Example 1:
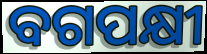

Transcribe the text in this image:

ବଗପକ୍ଷୀ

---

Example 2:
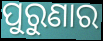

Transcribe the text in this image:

ପୁରୁଣାର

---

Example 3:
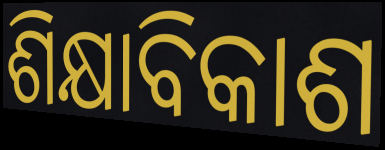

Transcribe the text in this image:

ଶିକ୍ଷାବିକାଶ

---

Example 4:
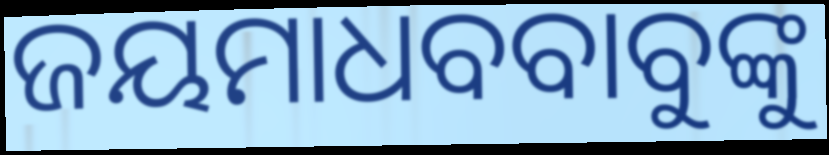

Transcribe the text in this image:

ଜୟମାଧବବାବୁଙ୍କୁ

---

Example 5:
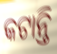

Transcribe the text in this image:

କଟାନ୍ତି